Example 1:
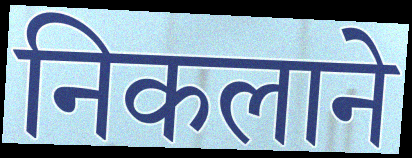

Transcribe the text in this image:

निकलाने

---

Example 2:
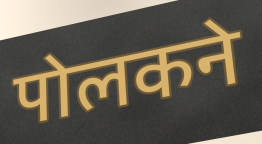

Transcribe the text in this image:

पोलकने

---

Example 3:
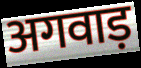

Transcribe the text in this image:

अगवाड़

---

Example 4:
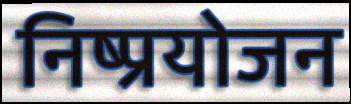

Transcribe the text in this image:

निष्प्रयोजन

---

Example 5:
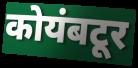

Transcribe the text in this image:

कोयंबटूर